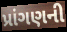
પ્રાંગણની